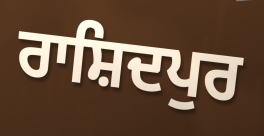
ਰਾਸ਼ਿਦਪੁਰ